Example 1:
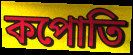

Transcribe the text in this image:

কপোতি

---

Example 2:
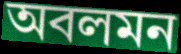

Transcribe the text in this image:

অবলমন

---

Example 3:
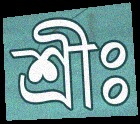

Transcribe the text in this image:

শ্রীঃ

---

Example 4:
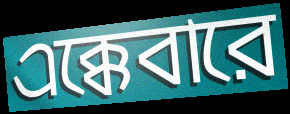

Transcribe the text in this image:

এক্কেবারে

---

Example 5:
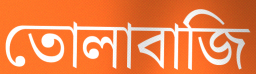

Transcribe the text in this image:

তোলাবাজি